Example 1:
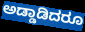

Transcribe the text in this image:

ಅಡ್ಡಾಡಿದರೂ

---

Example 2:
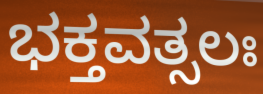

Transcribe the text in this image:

ಭಕ್ತವತ್ಸಲಃ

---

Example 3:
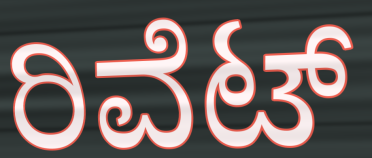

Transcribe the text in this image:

ರಿವೆಟ್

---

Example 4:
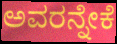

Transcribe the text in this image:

ಅವರನ್ನೇಕೆ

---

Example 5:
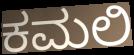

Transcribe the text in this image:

ಕಮಲಿ